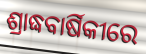
ଶ୍ରାଦ୍ଧବାର୍ଷିକୀରେ